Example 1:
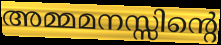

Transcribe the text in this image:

അമ്മമനസ്സിന്റെ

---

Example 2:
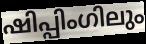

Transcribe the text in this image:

ഷിപ്പിംഗിലും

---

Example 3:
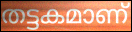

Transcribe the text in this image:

തട്ടകമാണ്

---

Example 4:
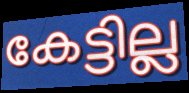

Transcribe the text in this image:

കേട്ടില്ല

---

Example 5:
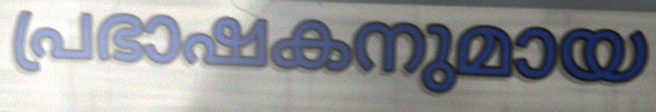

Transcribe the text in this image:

പ്രഭാഷകനുമായ